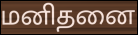
மனிதனை